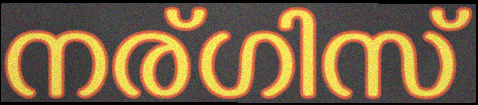
നര്ഗിസ്